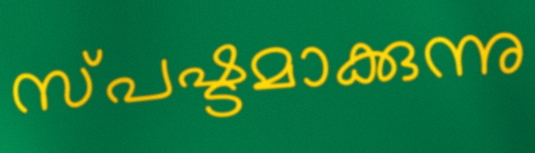
സ്പഷ്ടമാക്കുന്നു